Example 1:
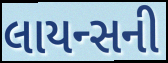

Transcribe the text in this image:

લાયન્સની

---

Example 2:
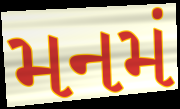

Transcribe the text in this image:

મનમં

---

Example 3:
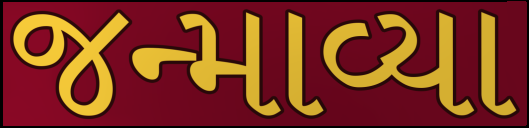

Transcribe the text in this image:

જન્માવ્યા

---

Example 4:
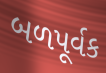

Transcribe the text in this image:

બળપૂર્વક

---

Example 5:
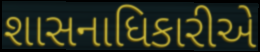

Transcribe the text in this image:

શાસનાધિકારીએ